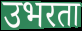
उभरता